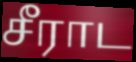
சீராட